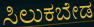
ಸಿಲುಕಬೇಡ